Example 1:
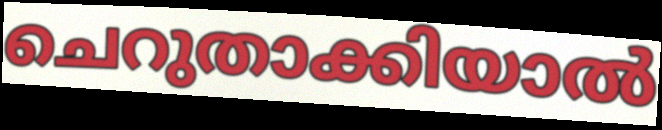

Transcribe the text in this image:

ചെറുതാക്കിയാൽ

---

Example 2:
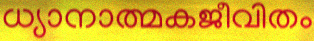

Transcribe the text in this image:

ധ്യാനാത്മകജീവിതം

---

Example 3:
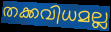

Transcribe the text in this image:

തക്കവിധമല്ല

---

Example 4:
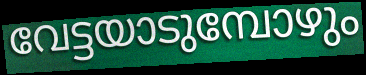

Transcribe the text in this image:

വേട്ടയാടുമ്പോഴും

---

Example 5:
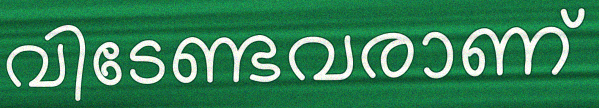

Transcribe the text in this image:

വിടേണ്ടവരാണ്